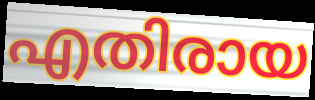
എതിരായ